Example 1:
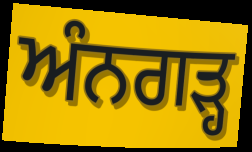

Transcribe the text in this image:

ਅੰਨਗੜ੍ਹ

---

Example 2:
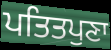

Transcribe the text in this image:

ਪਤਿਤਪੁਣਾ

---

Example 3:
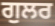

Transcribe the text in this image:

ਗੁਲਰ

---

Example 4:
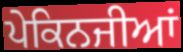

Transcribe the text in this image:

ਪੇਕਿਨਜੀਆਂ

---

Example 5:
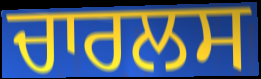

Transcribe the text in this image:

ਚਾਰਲਸ